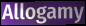
Allogamy